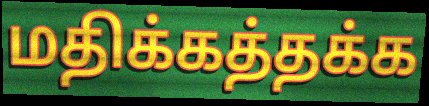
மதிக்கத்தக்க